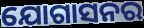
ଯୋଗାସନର